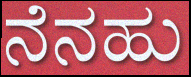
ನೆನಹು